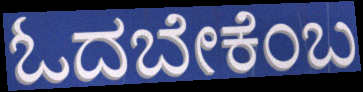
ಓದಬೇಕೆಂಬ